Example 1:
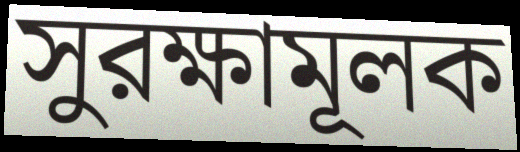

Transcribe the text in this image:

সুরক্ষামূলক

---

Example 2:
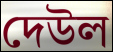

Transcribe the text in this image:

দেউল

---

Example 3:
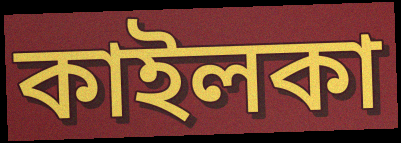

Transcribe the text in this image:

কাইলকা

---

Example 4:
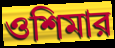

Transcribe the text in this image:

ওশিমার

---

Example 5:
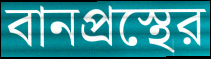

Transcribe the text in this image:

বানপ্রস্থের